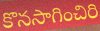
కొనసాగించిరి